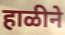
हाळीने